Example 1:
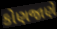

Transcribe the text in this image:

કોણજાણે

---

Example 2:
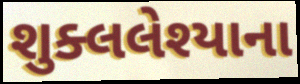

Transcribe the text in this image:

શુક્લલેશ્યાના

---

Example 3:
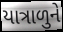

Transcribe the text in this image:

યાત્રાળુને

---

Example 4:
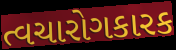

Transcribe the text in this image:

ત્વચારોગકારક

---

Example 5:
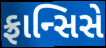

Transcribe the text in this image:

ફ્રાન્સિસે